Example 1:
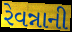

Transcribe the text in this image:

રેવન્નાની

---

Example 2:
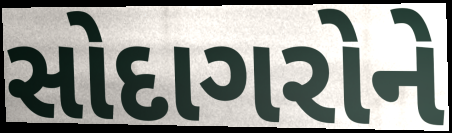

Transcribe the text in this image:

સોદાગરોને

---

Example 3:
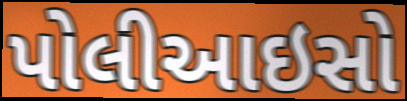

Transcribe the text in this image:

પોલીઆઇસો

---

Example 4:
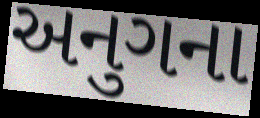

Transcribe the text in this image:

અનુગના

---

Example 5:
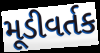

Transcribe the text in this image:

મૂડીવર્તક